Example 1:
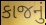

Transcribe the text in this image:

કાજનું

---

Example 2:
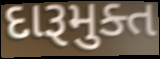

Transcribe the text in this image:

દારૂમુક્ત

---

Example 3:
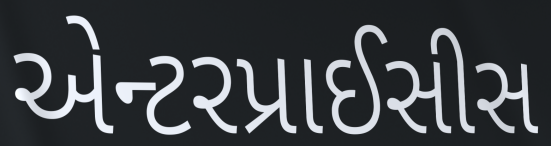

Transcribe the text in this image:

એન્ટરપ્રાઈસીસ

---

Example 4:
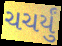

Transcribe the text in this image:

ચચર્યું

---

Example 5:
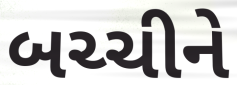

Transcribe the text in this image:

બચ્ચીને